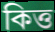
কিত্ত